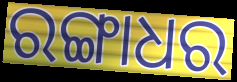
ରଙ୍ଗାଧର